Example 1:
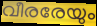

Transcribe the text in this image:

വീരരേയും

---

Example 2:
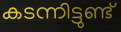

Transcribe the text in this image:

കടന്നിട്ടുണ്ട്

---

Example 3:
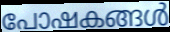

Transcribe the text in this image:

പോഷകങ്ങൾ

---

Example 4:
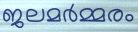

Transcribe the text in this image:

ജലമർമ്മരം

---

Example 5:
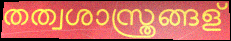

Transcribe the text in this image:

തത്വശാസ്ത്രങ്ങള്